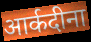
आर्कदीना